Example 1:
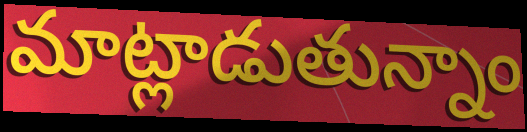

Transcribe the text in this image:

మాట్లాడుతున్నాం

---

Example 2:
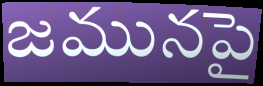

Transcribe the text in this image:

జమునపై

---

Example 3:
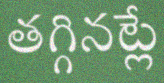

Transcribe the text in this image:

తగ్గినట్లే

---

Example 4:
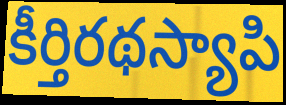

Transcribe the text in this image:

కీర్తిరథస్యాపి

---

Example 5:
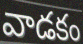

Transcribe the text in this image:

వాడకం